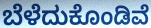
ಬೆಳೆದುಕೊಂಡಿವೆ